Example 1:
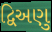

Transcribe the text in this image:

દ્વિઅણુ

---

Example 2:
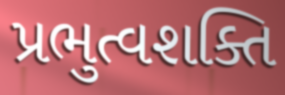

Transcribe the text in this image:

પ્રભુત્વશક્તિ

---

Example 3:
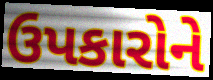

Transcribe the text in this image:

ઉપકારોને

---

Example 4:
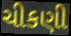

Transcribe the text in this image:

ચીકણી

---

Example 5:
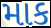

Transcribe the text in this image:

માક